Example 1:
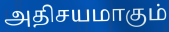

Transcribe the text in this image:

அதிசயமாகும்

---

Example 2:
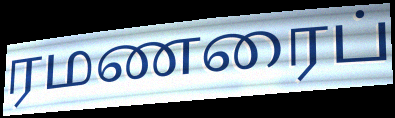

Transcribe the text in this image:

ரமணரைப்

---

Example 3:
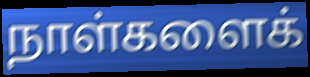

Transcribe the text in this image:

நாள்களைக்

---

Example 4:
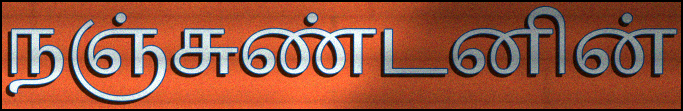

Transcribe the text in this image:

நஞ்சுண்டனின்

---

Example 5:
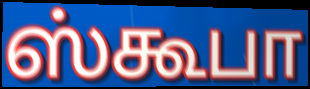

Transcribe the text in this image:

ஸ்கூபா